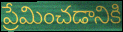
ప్రేమించడానికి